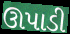
ઊપાડી